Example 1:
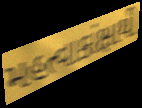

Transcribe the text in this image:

મહત્વાકાંક્ષાથી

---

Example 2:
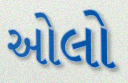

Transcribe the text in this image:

ઓલો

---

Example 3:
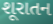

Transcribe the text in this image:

શૂરાતન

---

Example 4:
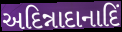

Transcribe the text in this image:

અદિન્નાદાનાદિં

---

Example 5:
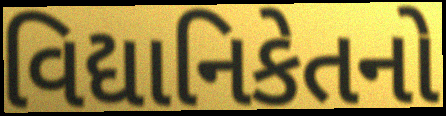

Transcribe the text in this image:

વિદ્યાનિકેતનો